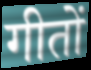
गीतों